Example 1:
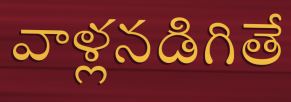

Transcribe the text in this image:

వాళ్లనడిగితే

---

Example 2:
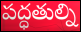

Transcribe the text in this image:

పద్ధతుల్ని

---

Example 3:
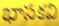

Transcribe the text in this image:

భాసకవి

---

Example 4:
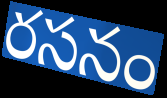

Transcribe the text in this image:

రసనం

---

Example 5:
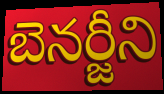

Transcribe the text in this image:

బెనర్జీని